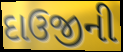
દાઉજીની